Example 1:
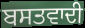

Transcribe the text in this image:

ਬਸਤਵਾਦੀ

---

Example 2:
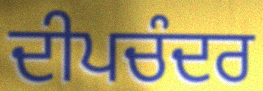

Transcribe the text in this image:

ਦੀਪਚੰਦਰ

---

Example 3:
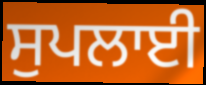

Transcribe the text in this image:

ਸੁਪਲਾਈ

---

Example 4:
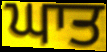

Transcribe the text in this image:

ਘਾਤ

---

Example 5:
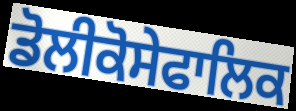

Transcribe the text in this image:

ਡੋਲੀਕੋਸੇਫਾਲਿਕ